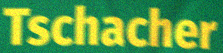
Tschacher